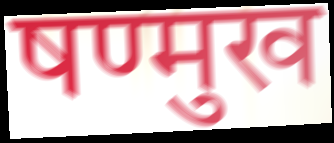
षण्मुख